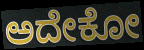
ಅದೇಕೋ